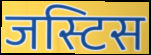
जस्‍टिस